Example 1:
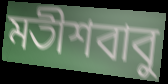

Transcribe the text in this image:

মতীশবাবু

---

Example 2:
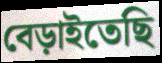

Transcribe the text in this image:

বেড়াইতেছি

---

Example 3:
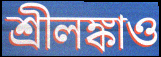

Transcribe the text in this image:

শ্রীলঙ্কাও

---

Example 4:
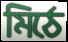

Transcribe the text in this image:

মিঠে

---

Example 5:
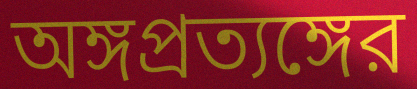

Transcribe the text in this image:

অঙ্গপ্রত্যঙ্গের